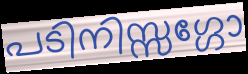
പടിനിസ്സഗ്ഗോ